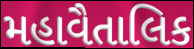
મહાવૈતાલિક